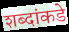
शब्दांकडे